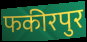
फकीरपुर